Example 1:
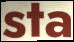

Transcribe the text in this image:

sta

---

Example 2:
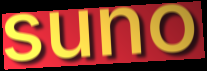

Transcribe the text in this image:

suno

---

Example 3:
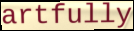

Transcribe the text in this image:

artfully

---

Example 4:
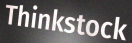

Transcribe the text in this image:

Thinkstock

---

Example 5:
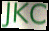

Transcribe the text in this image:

JKC